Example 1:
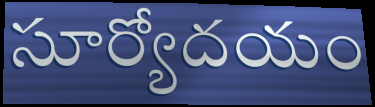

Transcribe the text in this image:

సూర్యోదయం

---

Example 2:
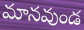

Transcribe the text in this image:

మానవుండ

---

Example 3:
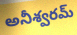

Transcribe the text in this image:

అనీశ్వరమ్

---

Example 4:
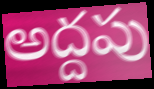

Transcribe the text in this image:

అద్దపు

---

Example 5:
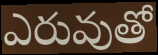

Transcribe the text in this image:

ఎరువుతో